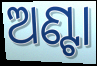
ଅଣ୍ଟା